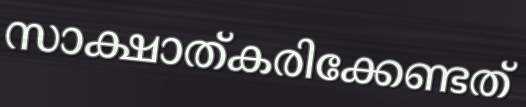
സാക്ഷാത്കരിക്കേണ്ടത്